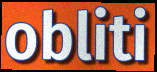
obliti